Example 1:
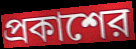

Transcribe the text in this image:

প্রকাশের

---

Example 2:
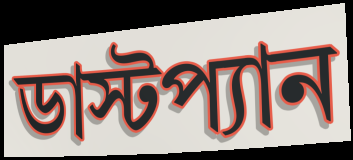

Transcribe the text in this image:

ডাস্টপ্যান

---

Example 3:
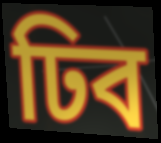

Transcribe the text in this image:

ঢিব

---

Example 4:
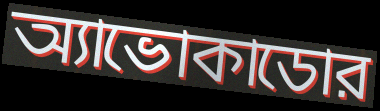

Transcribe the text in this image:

অ্যাভোকাডোর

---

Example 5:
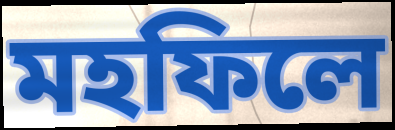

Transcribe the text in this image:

মহফিলে